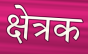
क्षेत्रक